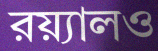
রয়্যালও